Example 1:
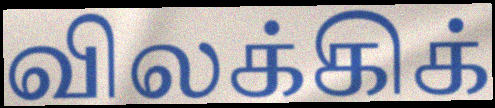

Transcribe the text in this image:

விலக்கிக்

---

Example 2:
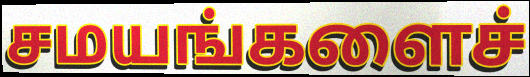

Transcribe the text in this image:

சமயங்களைச்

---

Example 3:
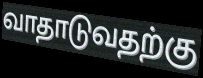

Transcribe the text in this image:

வாதாடுவதற்கு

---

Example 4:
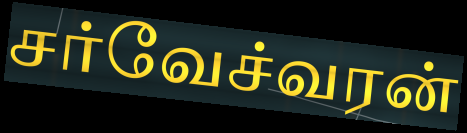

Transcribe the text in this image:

சர்வேச்வரன்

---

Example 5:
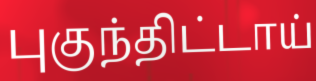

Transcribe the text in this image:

புகுந்திட்டாய்